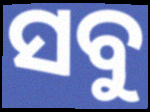
ସବୁ